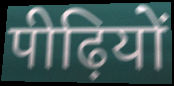
पीढ़ियों